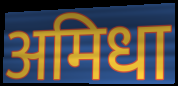
अमिधा